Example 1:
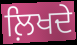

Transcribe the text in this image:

ਲ਼ਿਖਦੇ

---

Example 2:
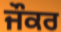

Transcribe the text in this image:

ਜੌਕਰ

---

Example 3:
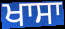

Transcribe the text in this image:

ਖਾਸਾ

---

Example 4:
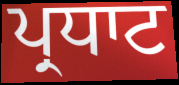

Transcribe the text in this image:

ਪ੍ਰਧਾਟ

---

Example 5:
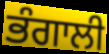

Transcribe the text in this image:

ਭੰਗਾਲੀ